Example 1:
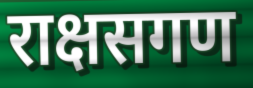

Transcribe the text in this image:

राक्षसगण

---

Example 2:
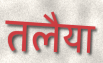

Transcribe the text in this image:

तलैया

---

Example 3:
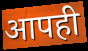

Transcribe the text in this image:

आपही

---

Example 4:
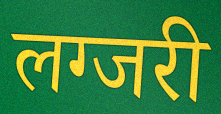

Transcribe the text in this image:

लग्जरी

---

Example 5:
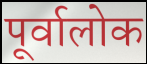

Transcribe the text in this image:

पूर्वालोक